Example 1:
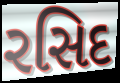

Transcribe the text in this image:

રસિદ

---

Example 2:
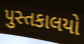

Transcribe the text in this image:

પુસ્તકાલયો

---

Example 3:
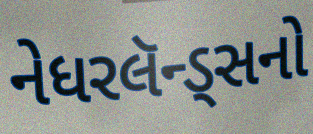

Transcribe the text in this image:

નેધરલૅન્ડ્સનો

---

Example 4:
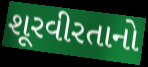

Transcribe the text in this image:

શૂરવીરતાનો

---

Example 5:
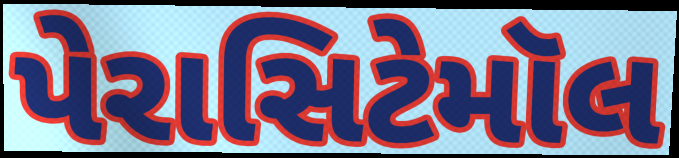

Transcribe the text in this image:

પેરાસિટેમૉલ